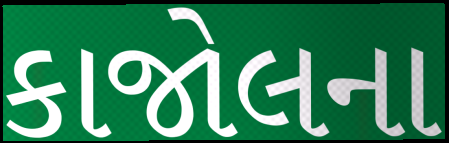
કાજોલના